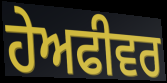
ਹੇਅਫੀਵਰ